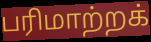
பரிமாற்றக்